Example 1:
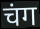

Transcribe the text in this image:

चंग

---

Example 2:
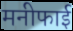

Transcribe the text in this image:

मनीफाई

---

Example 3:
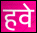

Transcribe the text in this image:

हवे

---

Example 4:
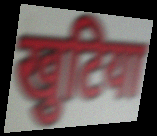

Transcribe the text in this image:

खुटिया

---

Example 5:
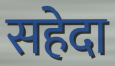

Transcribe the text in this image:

सहेदा